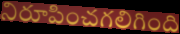
నిరూపించగలిగింది